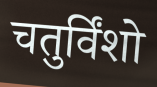
चतुर्विंशो